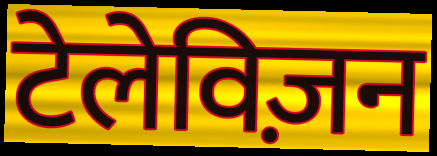
टेलेविज़न